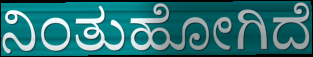
ನಿಂತುಹೋಗಿದೆ